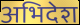
अभिदेश